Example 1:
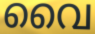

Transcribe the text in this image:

വൈ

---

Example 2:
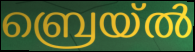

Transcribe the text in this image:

ബ്രെയ്ൽ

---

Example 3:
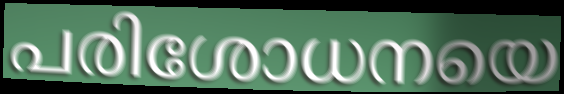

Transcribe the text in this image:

പരിശോധനയെ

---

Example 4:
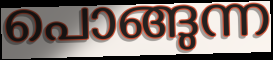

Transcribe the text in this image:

പൊങ്ങുന്ന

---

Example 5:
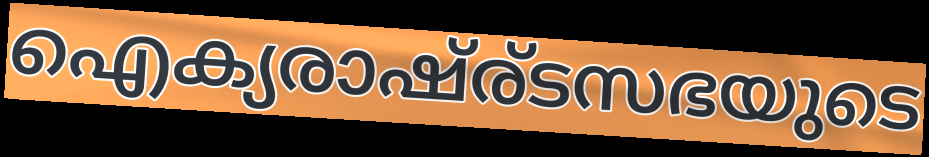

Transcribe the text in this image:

ഐക്യരാഷ്ര്ടസഭയുടെ